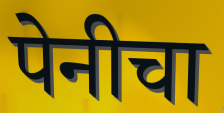
पेनीचा